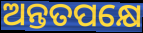
ଅନ୍ତତପକ୍ଷେ